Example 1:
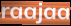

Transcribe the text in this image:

raajaa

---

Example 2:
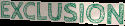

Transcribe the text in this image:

EXCLUSION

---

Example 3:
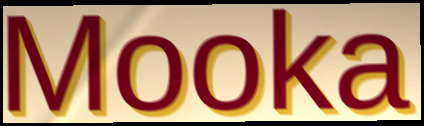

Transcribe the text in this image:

Mooka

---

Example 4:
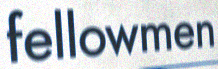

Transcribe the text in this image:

fellowmen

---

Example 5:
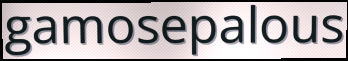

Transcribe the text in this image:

gamosepalous